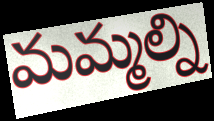
మమ్మల్ని